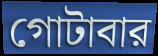
গোটাবার